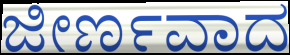
ಜೀರ್ಣವಾದ